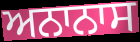
ਅਨਾਨਾਸ